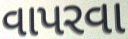
વાપરવા